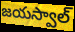
జయస్వాల్